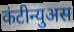
कंटीन्युअस